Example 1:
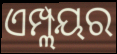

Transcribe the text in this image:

ଏମ୍ପ୍ଲୟର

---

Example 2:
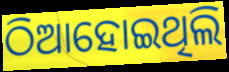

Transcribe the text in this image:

ଠିଆହୋଇଥିଲି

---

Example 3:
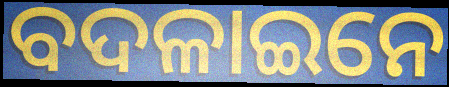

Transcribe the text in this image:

ବଦଳାଇନେ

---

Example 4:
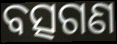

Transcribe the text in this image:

ବତ୍ସଗଣ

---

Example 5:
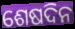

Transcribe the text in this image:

ଶେଷଦିନ